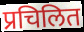
प्रचिलित